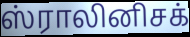
ஸ்ராலினிசக்